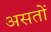
असतों